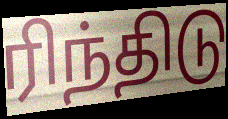
ரிந்திடு